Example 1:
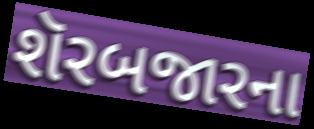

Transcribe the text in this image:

શૅરબજારના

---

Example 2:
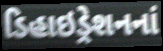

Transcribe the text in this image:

ડિહાઇડ્રેશનનાં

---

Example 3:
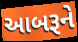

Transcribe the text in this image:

આબરૂને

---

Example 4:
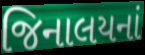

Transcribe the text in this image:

જિનાલયનાં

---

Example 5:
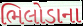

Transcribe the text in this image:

ભિલોડાના